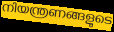
നിയന്ത്രണങ്ങളുടെ